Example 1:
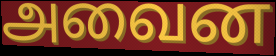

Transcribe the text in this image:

அவைன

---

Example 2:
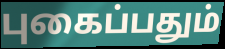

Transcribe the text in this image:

புகைப்பதும்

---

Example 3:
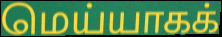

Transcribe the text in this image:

மெய்யாகக்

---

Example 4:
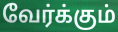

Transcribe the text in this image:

வேர்க்கும்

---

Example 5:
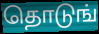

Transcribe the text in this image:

தொடுங்